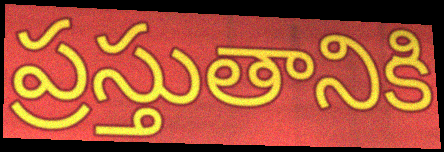
ప్రస్తుతానికి